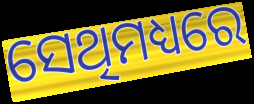
ସେଥିମଧ୍ୟରେ